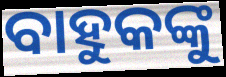
ବାହୁକଙ୍କୁ